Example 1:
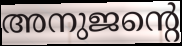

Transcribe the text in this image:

അനുജന്റെ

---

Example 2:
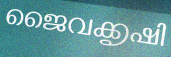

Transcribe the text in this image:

ജൈവക്കൃഷി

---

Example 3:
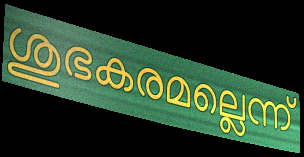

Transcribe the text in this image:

ശുഭകരമല്ലെന്ന്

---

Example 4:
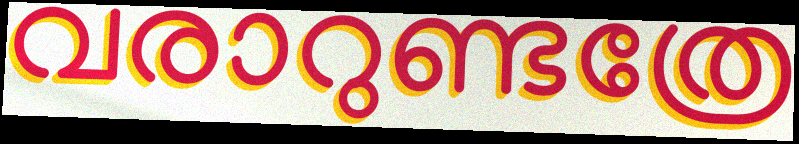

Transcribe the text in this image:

വരാറുണ്ടത്രേ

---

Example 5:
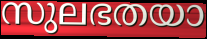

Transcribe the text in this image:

സുലഭതയാ